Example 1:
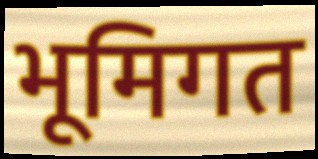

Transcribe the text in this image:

भूमिगत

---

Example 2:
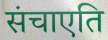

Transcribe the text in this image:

संचाएति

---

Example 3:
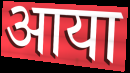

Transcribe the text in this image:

आया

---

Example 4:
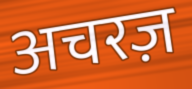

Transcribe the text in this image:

अचरज़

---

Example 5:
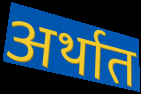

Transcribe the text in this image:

अर्थात